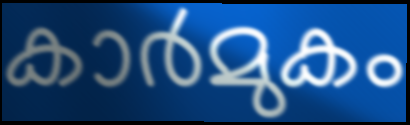
കാർമുകം